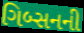
ગિબ્સનની